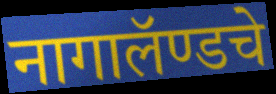
नागालॅण्डचे